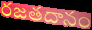
రజతదానం